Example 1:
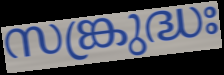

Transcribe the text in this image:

സങ്ക്രുദ്ധഃ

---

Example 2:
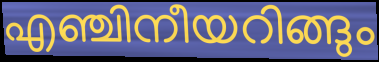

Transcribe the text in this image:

എഞ്ചിനീയറിങ്ങും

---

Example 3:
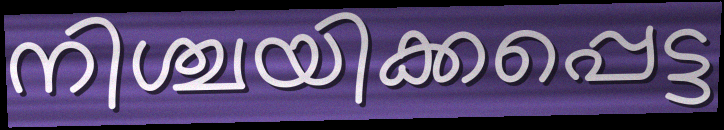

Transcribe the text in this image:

നിശ്ചയിക്കപ്പെട്ട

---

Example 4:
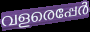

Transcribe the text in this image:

വളരെപ്പേർ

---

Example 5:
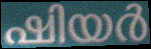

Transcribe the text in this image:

ഷിയർ